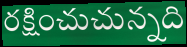
రక్షించుచున్నది